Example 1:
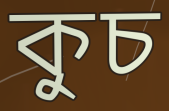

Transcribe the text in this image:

কুচ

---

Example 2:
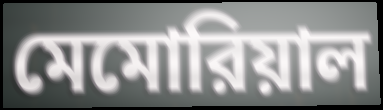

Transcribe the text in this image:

মেমোরিয়াল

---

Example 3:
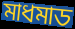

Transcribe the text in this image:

মাধমাড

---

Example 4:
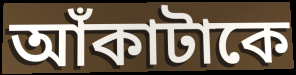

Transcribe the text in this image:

আঁকাটাকে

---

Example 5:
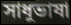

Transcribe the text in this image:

সাধুভাষা